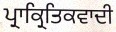
ਪ੍ਰਾਕ੍ਰਿਤਿਕਵਾਦੀ